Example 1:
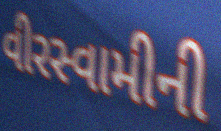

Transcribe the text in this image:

વીરસ્વામીની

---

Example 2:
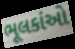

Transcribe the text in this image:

ભૂલકાંઓ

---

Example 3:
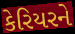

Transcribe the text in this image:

કેરિયરને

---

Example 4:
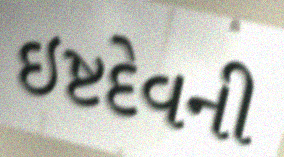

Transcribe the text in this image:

ઇષ્ટદેવની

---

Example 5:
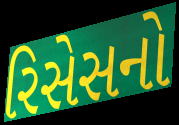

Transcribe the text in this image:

રિસેસનો